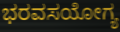
ಭರವಸಯೋಗ್ಯ